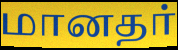
மானதர்